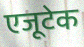
एजूटेक